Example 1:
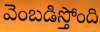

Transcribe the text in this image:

వెంబడిస్తోంది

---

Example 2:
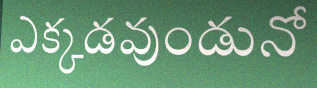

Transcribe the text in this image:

ఎక్కడవుండునో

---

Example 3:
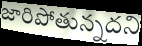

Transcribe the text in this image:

జారిపోతున్నదని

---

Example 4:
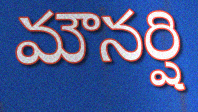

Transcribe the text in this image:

మౌనర్షి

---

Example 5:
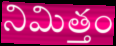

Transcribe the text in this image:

నిమిత్తం